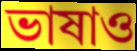
ভাষাও